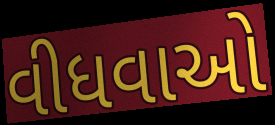
વીધવાઓ